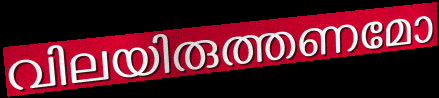
വിലയിരുത്തണമോ